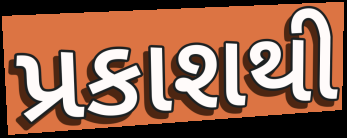
પ્રકાશથી